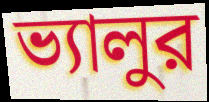
ভ্যালুর